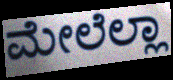
ಮೇಲೆಲ್ಲಾ